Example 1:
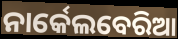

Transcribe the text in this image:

ନାର୍କେଲବେରିଆ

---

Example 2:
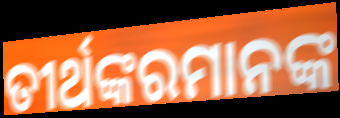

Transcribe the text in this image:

ତୀର୍ଥଙ୍କରମାନଙ୍କ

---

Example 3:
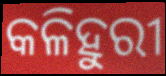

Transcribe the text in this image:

କଳିହୁରୀ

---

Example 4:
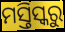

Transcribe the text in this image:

ମସ୍ତିସ୍କରୁ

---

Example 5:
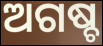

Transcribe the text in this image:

ଅଗଷ୍ଚ